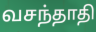
வசந்தாதி